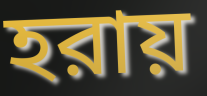
হরায়